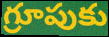
గ్రూపుకు